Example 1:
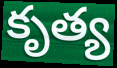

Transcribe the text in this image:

కృత్య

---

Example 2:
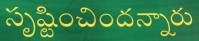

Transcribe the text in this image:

సృష్టించిందన్నారు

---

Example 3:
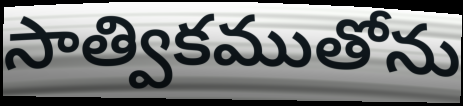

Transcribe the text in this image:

సాత్వికముతోను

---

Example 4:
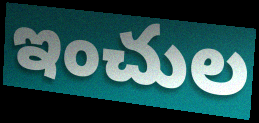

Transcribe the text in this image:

ఇంచుల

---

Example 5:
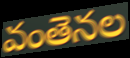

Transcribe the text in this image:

వంతెనల